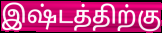
இஷ்டத்திற்கு